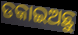
ଡକାଇଅଛୁ